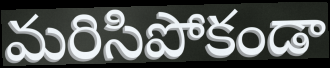
మరిసిపోకండా